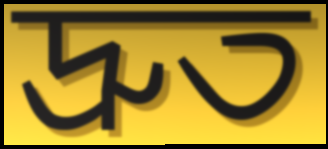
দ্ৰুত